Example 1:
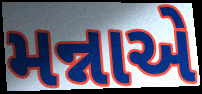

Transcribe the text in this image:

મન્નાએ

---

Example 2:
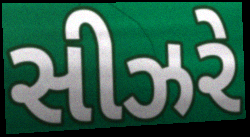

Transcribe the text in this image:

સીઝરે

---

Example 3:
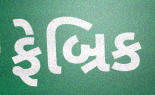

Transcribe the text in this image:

ફેબ્રિક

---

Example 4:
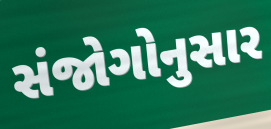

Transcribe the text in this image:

સંજોગોનુસાર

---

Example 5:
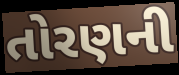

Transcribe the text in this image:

તોરણની